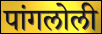
पांगलोली